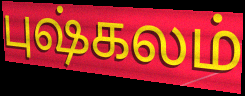
புஷ்கலம்